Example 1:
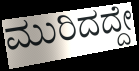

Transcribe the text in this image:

ಮುರಿದದ್ದೇ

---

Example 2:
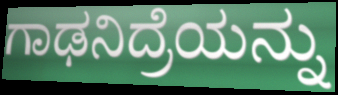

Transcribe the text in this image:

ಗಾಢನಿದ್ರೆಯನ್ನು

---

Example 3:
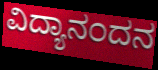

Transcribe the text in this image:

ವಿದ್ಯಾನಂದನ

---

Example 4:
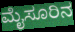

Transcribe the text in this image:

ಮೈಸೂರಿನ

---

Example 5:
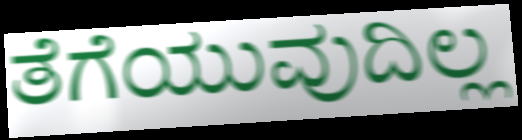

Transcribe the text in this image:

ತೆಗೆಯುವುದಿಲ್ಲ